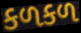
કળકળ